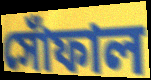
সোঁফাল